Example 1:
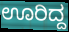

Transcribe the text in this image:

ಊರಿದ್ದ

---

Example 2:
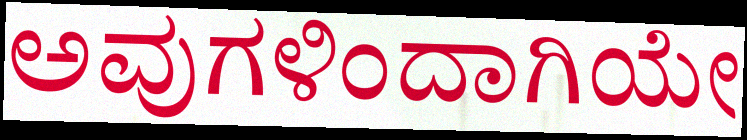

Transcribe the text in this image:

ಅವುಗಳಿಂದಾಗಿಯೇ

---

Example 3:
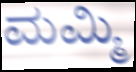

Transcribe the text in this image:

ಮಮ್ಮಿ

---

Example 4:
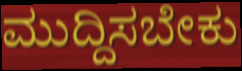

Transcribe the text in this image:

ಮುದ್ದಿಸಬೇಕು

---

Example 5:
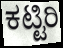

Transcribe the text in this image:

ಕಟ್ಟಿರಿ